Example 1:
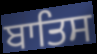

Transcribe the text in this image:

ਬਾਤਿਸ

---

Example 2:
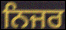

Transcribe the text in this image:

ਨਿਜਰ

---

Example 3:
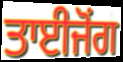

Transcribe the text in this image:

ਤਾਈਜੋਂਗ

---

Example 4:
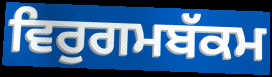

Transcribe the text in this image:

ਵਿਰੁਗਮਬੱਕਮ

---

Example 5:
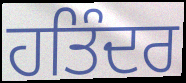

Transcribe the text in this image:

ਹਤਿੰਦਰ